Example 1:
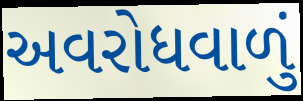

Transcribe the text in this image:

અવરોધવાળું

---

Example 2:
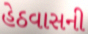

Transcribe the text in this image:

હેઠવાસની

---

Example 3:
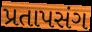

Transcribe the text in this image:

પ્રતાપસંગ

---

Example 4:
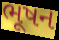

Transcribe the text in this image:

ભૂષન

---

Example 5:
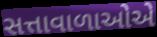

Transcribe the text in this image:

સત્તાવાળાઓએ